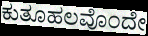
ಕುತೂಹಲವೊಂದೇ